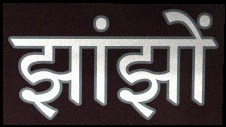
झांझों